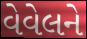
વેવેલને